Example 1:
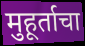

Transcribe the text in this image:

मुहूर्ताचा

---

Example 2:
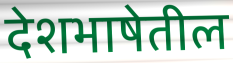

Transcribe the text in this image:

देशभाषेतील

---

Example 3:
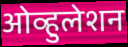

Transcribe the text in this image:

ओव्हुलेशन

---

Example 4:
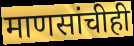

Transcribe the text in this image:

माणसांचीही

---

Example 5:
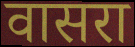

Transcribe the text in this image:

वासरा